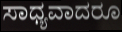
ಸಾಧ್ಯವಾದರೂ